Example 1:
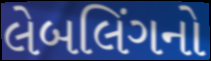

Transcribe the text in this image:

લેબલિંગનો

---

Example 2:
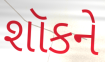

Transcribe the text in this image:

શૉકને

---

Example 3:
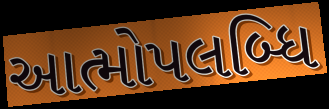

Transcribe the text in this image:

આત્મોપલબ્ધિ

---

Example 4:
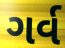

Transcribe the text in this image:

ગર્વ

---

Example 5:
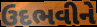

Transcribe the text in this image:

ઉદભવીને